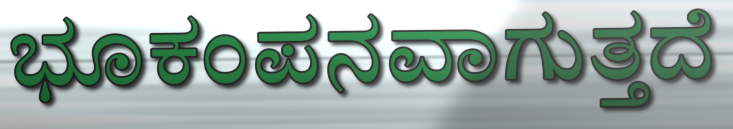
ಭೂಕಂಪನವಾಗುತ್ತದೆ